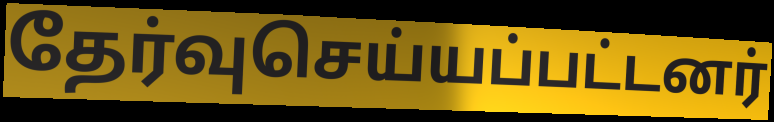
தேர்வுசெய்யப்பட்டனர்